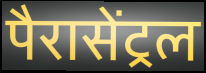
पैरासेंट्रल